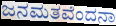
ಜನಮತವೆಂದನಾ